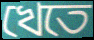
খেতে